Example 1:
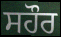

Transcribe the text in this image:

ਸਹੌਰ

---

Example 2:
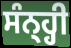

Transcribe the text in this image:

ਸੰਨ੍ਹ੍ਹੀ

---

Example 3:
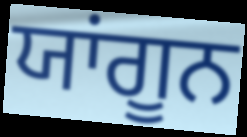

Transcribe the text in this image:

ਯਾਂਗੂਨ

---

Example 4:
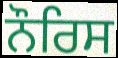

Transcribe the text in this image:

ਨੌਰਿਸ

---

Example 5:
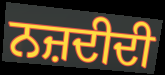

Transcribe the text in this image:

ਨਜ਼ਦੀਦੀ